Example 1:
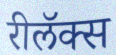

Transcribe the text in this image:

रीलॅक्स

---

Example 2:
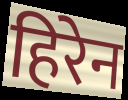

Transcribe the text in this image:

हिरेन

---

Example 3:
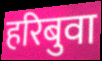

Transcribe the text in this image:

हरिबुवा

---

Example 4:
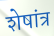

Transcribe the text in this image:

शेषांत्र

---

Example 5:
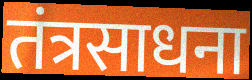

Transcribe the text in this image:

तंत्रसाधना